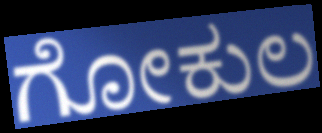
ಗೋಕುಲ